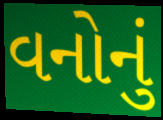
વનોનું